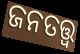
ଜନତତ୍ତ୍ୱ